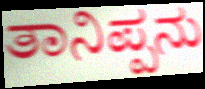
ತಾನಿಪ್ಪನು